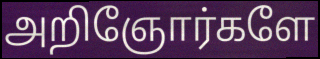
அறிஞோர்களே